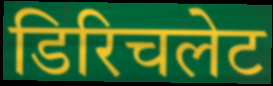
डिरिचलेट